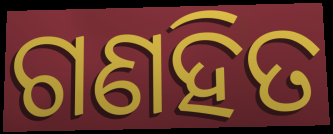
ଗଣହିତ